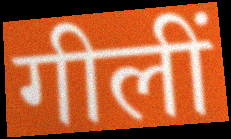
गीलीं